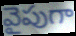
వైపుగా